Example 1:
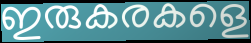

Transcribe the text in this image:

ഇരുകരകളെ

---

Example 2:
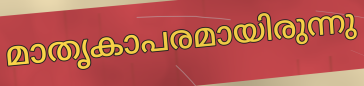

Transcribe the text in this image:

മാതൃകാപരമായിരുന്നു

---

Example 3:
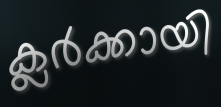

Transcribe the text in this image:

ക്ലർക്കായി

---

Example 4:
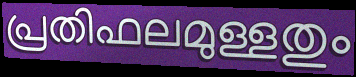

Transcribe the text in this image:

പ്രതിഫലമുള്ളതും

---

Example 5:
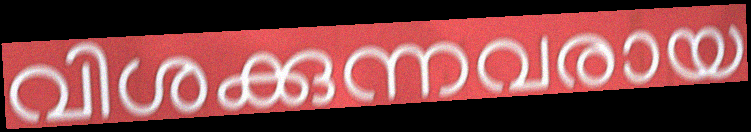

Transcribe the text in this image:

വിശക്കുന്നവരായ